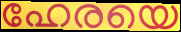
ഹേരയെ